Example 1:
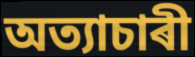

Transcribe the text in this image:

অত্যাচাৰী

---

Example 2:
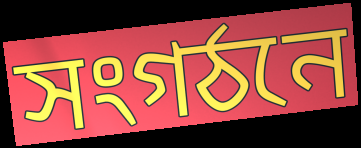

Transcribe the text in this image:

সংগঠনে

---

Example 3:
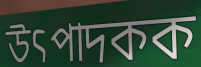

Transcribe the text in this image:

উৎপাদকক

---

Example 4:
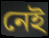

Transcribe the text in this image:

নেই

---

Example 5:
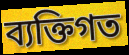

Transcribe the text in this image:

ব্যক্তিগত